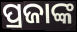
ପ୍ରଜାଙ୍କ